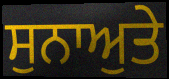
ਸੁਨਾਅੁਤੇ